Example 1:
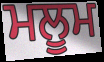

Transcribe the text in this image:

ਮਲੂਮ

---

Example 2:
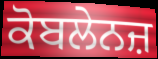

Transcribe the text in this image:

ਕੋਬਲੇਨਜ਼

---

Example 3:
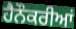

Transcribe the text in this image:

ਹੈਨੌਕਰੀਆਂ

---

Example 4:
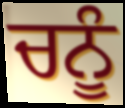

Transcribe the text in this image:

ਚਨੂੰ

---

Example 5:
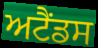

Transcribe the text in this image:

ਅਟੈਂਡਸ